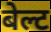
बेल्ट